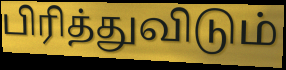
பிரித்துவிடும்